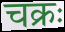
चक्रः